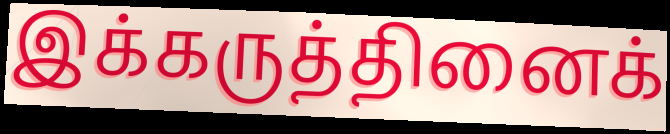
இக்கருத்தினைக்